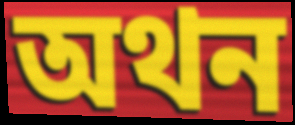
অথন